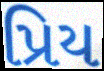
પ્રિય